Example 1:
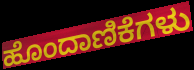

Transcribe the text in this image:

ಹೊಂದಾಣಿಕೆಗಳು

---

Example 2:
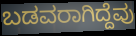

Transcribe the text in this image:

ಬಡವರಾಗಿದ್ದೆವು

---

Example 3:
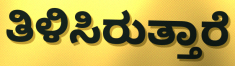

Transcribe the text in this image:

ತಿಳಿಸಿರುತ್ತಾರೆ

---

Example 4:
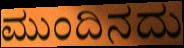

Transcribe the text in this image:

ಮುಂದಿನದು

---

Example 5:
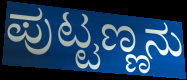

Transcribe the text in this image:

ಪುಟ್ಟಣ್ಣನು